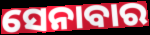
ସେନାବାର